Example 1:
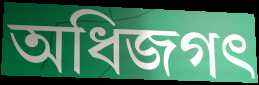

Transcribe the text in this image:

অধিজগৎ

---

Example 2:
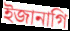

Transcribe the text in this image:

ইজানাগি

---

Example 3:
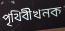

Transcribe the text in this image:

পৃথিবীখনক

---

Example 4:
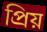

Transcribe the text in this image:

প্ৰিয়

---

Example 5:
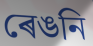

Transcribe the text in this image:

ৰেঙনি